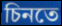
চিনতে